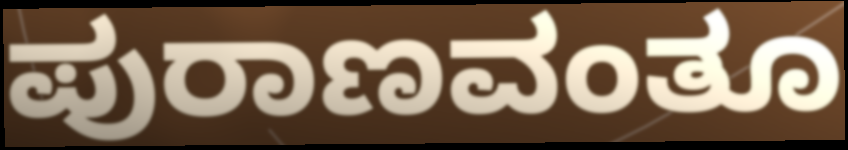
ಪುರಾಣವಂತೂ